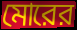
মোরের